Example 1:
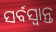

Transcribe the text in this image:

ସର୍ବସ୍ୱାନ୍ତ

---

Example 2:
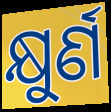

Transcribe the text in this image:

କ୍ଷୁର୍ଣ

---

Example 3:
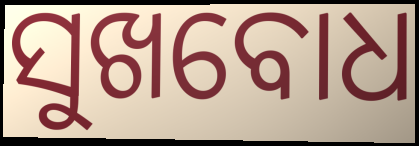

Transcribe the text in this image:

ସୁଖବୋଧ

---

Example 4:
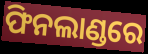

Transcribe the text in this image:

ଫିନଲାଣ୍ଡରେ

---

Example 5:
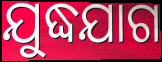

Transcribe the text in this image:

ଯୁଦ୍ଧଯାଗ